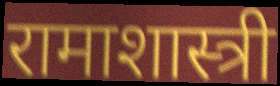
रामाशास्त्री